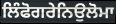
ਲਿੰਫੋਗਰੇਨਿਉਲੋਮਾ